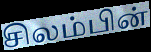
சிலம்பின்